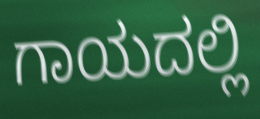
ಗಾಯದಲ್ಲಿ